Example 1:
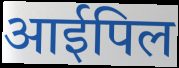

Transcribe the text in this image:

आईपिल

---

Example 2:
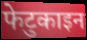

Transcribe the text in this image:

फेटुकाइन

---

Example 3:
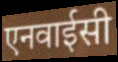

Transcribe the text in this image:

एनवाईसी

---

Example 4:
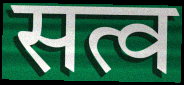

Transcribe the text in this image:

सत्व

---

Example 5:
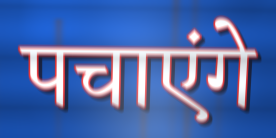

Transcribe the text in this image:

पचाएंगे